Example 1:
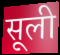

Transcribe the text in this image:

सूली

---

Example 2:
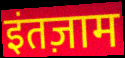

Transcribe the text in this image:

इंतज़ाम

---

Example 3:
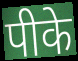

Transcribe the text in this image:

पीके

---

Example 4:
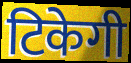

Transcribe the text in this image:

टिकेगी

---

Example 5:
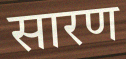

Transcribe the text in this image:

सारण